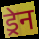
ड्रेन